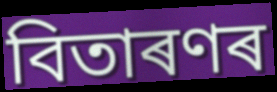
বিতাৰণৰ